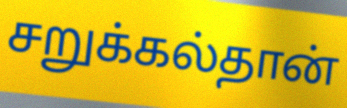
சறுக்கல்தான்